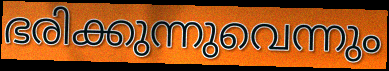
ഭരിക്കുന്നുവെന്നും